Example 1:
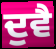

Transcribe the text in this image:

ਦੁਵੈ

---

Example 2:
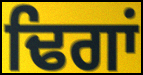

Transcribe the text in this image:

ਢਿਗਾਂ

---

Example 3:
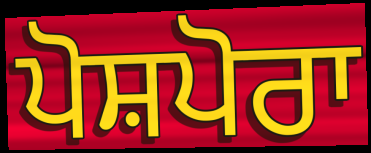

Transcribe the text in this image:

ਪੋਸ਼ਪੋਰਾ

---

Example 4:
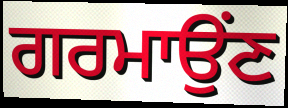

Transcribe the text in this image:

ਗਰਮਾਉਂਣ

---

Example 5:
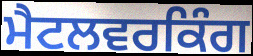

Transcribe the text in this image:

ਮੈਟਲਵਰਕਿੰਗ